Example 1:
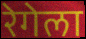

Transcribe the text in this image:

रेगेला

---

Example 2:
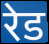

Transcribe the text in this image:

रेड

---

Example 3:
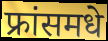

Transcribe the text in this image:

फ्रांसमधे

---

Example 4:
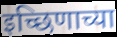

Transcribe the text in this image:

इच्छिणाच्या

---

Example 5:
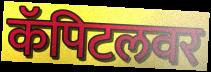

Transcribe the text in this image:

कॅपिटलवर